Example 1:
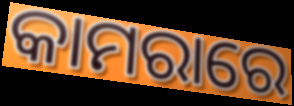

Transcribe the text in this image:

କାମରାରେ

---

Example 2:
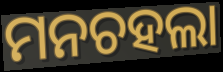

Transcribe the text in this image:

ମନଚହଲା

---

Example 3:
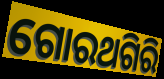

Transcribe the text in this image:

ଗୋରଥଗିରି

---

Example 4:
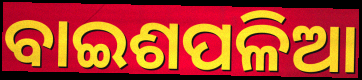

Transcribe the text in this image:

ବାଇଶପଳିଆ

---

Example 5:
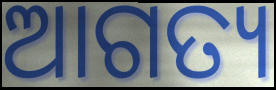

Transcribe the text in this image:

ଆଗତ୍ୟ